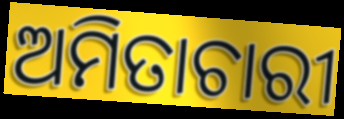
ଅମିତାଚାରୀ